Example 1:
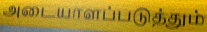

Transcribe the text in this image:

அடையாளப்படுத்தும்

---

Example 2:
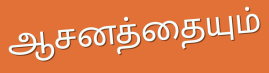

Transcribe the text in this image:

ஆசனத்தையும்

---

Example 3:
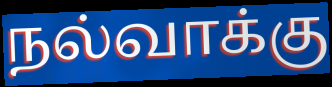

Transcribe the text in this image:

நல்வாக்கு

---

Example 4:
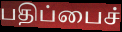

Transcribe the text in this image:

பதிப்பைச்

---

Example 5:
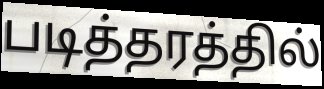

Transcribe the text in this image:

படித்தரத்தில்